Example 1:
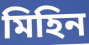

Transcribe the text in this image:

মিহিন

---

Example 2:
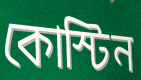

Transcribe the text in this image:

কোস্টিন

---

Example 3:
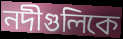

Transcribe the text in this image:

নদীগুলিকে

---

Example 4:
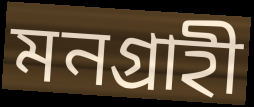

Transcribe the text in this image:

মনগ্রাহী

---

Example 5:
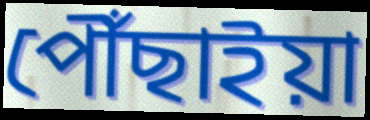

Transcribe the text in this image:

পৌঁছাইয়া